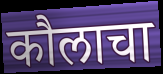
कौलाचा